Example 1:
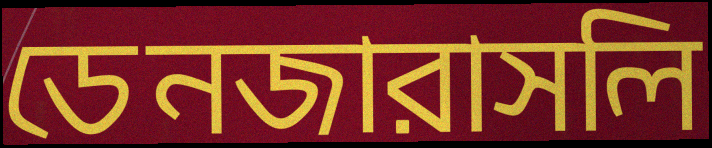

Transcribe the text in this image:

ডেনজারাসলি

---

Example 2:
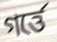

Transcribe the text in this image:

গর্ত্তে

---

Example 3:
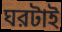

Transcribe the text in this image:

ঘরটাই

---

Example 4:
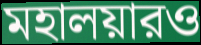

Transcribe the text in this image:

মহালয়ারও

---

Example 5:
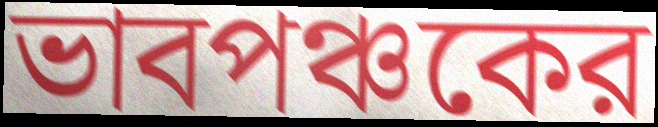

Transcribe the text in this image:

ভাবপঞ্চকের